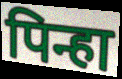
पिन्हा